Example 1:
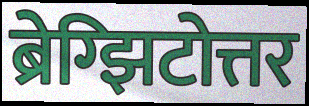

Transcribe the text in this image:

ब्रेग्झिटोत्तर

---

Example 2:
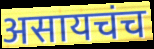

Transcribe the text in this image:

असायचंच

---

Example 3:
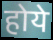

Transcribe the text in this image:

होये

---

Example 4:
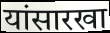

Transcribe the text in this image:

यांसारखा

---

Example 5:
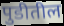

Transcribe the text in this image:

पुडीतील